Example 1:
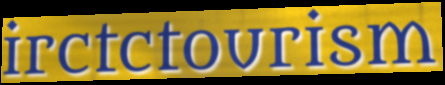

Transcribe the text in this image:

irctctourism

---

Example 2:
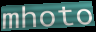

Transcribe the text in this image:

mhoto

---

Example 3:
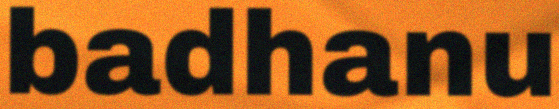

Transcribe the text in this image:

badhanu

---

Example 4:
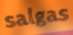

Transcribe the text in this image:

salgas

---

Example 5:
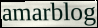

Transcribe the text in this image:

amarblog